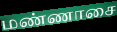
மண்ணாசை